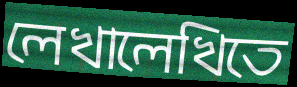
লেখালেখিতে